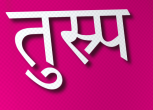
तुस्र्प